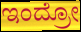
ಇಂದ್ರೋ